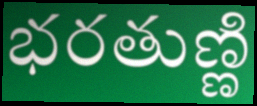
భరతుణ్ణి